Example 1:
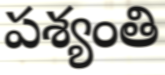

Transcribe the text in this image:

పశ్యంతి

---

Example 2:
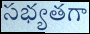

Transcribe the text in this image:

సభ్యతగా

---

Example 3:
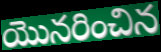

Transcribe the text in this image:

యొనరించిన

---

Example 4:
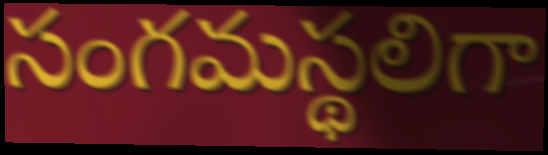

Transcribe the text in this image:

సంగమస్థలిగా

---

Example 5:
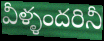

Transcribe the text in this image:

వీళ్ళందరినీ